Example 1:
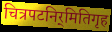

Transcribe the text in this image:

चित्रपटनिर्मितिगृह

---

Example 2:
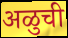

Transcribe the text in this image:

अळुची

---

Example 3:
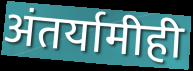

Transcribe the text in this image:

अंतर्यामीही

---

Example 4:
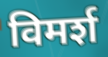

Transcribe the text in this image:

विमर्श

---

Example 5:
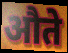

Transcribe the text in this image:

औते